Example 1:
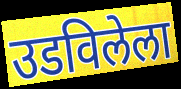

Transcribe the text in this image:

उडविलेला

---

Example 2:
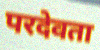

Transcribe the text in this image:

परदेवता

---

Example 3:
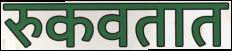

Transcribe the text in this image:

रुकवतात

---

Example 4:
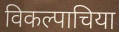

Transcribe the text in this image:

विकल्पाचिया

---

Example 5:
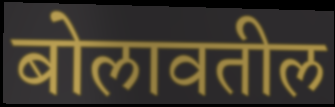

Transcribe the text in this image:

बोलावतील